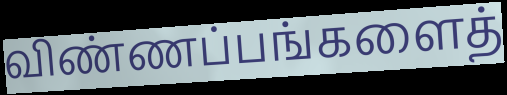
விண்ணப்பங்களைத்